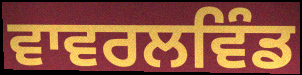
ਵਾਵਰਲਵਿੰਡ